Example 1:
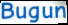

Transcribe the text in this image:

Bugun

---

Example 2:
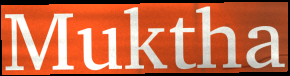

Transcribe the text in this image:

Muktha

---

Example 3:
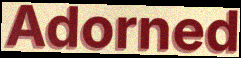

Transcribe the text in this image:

Adorned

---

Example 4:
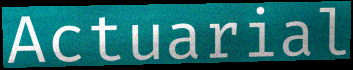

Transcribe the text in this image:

Actuarial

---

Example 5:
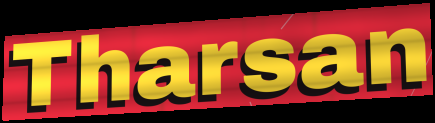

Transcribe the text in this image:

Tharsan